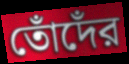
তোঁদেঁর